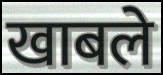
खाबले